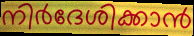
നിർദേശിക്കാൻ